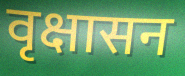
वृक्षासन